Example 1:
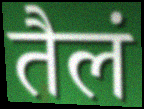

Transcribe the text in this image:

तैलं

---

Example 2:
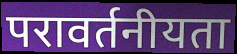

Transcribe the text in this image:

परावर्तनीयता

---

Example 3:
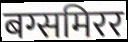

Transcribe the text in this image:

बग्समिरर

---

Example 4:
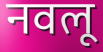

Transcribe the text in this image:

नवलू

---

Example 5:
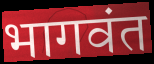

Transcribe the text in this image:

भागवंत